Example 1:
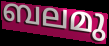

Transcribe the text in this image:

ബലമു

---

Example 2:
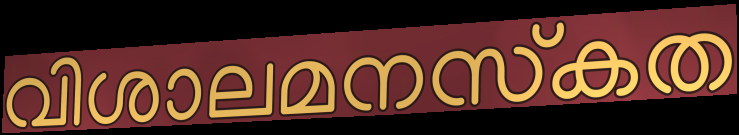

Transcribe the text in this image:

വിശാലമനസ്‌കത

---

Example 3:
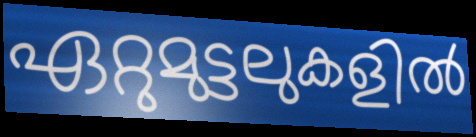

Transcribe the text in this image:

ഏറ്റുമുട്ടലുകളിൽ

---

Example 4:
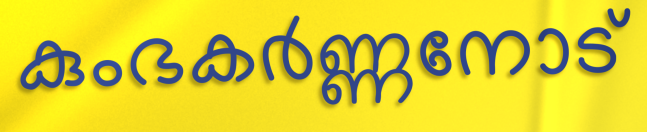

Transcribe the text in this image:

കുംഭകർണ്ണനോട്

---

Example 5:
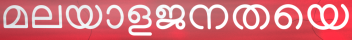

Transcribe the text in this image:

മലയാളജനതയെ